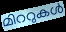
മിററുകൾ